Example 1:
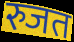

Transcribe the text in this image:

रुजत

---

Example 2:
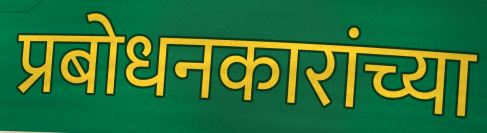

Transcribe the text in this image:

प्रबोधनकारांच्या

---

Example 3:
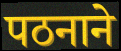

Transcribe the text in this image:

पठनाने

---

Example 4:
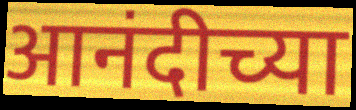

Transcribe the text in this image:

आनंदीच्या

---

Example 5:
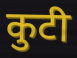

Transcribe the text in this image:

कुटी